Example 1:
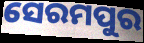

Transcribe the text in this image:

ସେରମପୁର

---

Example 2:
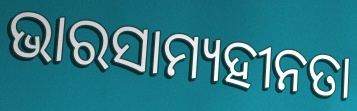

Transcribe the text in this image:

ଭାରସାମ୍ୟହୀନତା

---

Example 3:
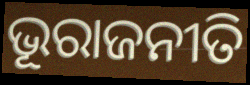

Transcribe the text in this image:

ଭୂରାଜନୀତି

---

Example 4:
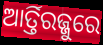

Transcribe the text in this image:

ଆର୍ତ୍ତିରଜ୍ଜୁରେ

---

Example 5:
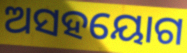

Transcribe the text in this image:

ଅସହୟୋଗ